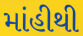
માંહીથી